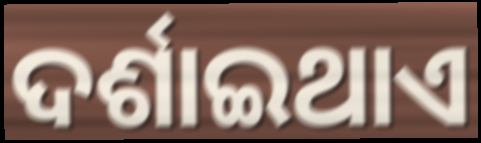
ଦର୍ଶାଇଥାଏ